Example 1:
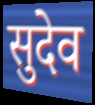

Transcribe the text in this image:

सुदेव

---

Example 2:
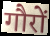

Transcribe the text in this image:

गौरों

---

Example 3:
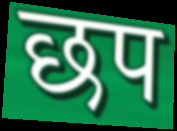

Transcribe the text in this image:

छप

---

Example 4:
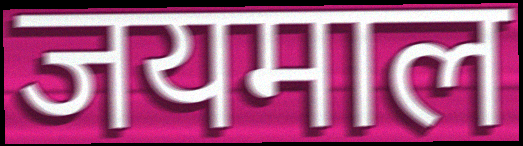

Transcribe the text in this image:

जयमाल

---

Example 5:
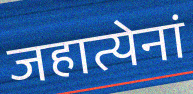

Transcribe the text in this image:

जहात्येनां